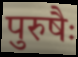
पुरुषैः